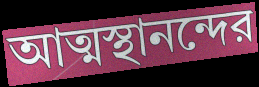
আত্মস্থানন্দের